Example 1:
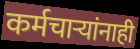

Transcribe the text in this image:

कर्मचार्‍यांनाही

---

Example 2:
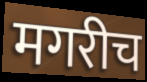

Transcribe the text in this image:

मगरीच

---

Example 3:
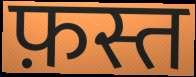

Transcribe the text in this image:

फ़स्त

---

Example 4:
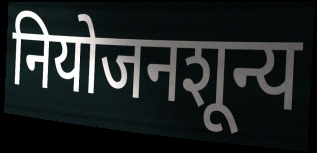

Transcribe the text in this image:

नियोजनशून्य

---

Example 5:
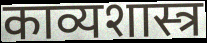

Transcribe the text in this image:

काव्यशास्त्र